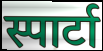
स्पार्टा